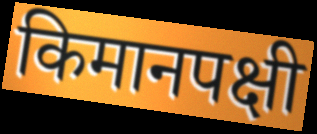
किमानपक्षी